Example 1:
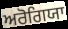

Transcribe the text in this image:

ਅਰੋਗਿਯਾ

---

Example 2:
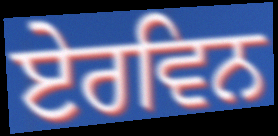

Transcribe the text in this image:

ਏਰਵਿਨ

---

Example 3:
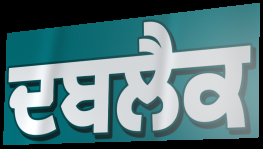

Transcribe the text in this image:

ਦਬਲੈਕ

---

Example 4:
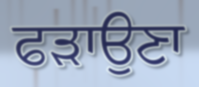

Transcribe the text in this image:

ਫੜਾਉਣਾ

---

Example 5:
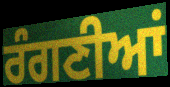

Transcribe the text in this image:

ਰੰਗਣੀਆਂ